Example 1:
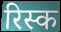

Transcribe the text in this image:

रिस्क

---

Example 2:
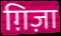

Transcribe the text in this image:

ग़िज़ा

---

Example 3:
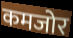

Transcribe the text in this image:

कमजोर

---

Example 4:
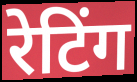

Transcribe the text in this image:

रेटिंग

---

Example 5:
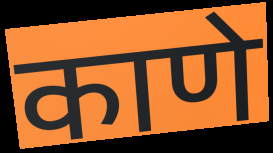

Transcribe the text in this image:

काणे